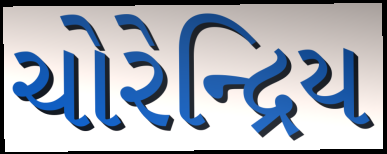
ચોરેન્દ્રિય